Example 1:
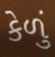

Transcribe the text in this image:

કેળું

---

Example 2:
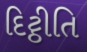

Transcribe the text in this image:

દિટ્ઠીતિ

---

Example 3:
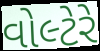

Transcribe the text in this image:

વોલ્ટેરે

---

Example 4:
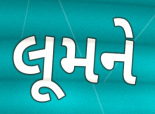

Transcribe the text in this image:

લૂમને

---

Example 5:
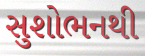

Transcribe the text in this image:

સુશોભનથી